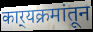
कार्यक्रमांतून